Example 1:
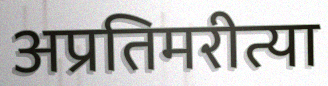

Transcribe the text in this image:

अप्रतिमरीत्या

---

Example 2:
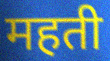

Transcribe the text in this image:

महती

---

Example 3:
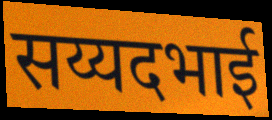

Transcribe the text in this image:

सय्यदभाई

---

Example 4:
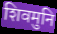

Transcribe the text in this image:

शिवमुनि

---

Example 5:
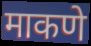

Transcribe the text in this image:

माकणे